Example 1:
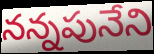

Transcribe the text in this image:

నన్నపునేని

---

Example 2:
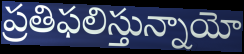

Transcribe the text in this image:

ప్రతిఫలిస్తున్నాయో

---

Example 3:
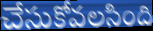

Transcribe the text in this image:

చేసుకోవలసింది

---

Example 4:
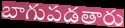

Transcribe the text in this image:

బాగుపడతారు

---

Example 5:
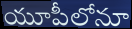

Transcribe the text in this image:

యూపీలోనూ